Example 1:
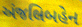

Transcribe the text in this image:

અંજલિબહેન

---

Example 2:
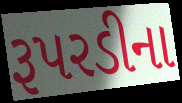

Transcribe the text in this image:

રૂપરડીના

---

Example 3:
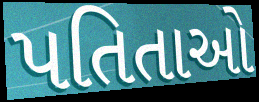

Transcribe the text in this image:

પતિતાઓ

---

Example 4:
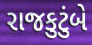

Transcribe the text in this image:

રાજકુટુંબે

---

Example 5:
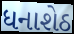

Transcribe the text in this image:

ધનાશેઠ